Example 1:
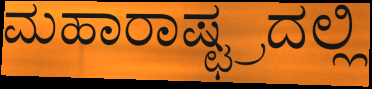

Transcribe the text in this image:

ಮಹಾರಾಷ್ಟ್ರದಲ್ಲಿ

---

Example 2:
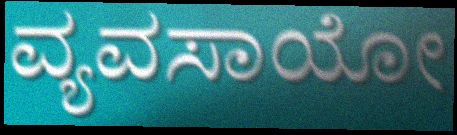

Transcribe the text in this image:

ವ್ಯವಸಾಯೋ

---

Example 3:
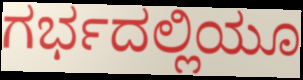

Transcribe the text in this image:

ಗರ್ಭದಲ್ಲಿಯೂ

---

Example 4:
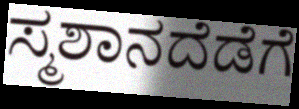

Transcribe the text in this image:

ಸ್ಮಶಾನದೆಡೆಗೆ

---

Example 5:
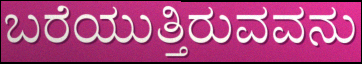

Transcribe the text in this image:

ಬರೆಯುತ್ತಿರುವವನು